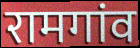
रामगांव